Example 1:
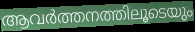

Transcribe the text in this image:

ആവർത്തനത്തിലൂടെയും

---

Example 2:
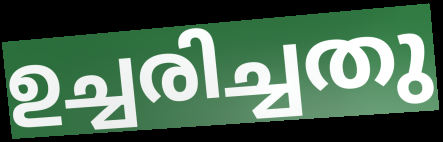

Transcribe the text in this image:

ഉച്ചരിച്ചതു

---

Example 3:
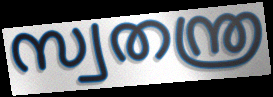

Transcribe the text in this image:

സ്വതന്ത്ര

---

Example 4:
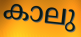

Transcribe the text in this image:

കാലു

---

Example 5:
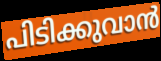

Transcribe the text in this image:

പിടിക്കുവാൻ